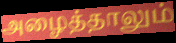
அழைத்தாலும்